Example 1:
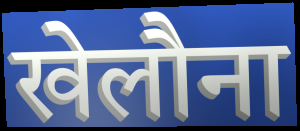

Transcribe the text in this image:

खेलौना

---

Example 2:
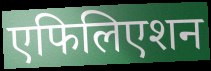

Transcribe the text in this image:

एफिलिएशन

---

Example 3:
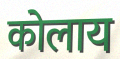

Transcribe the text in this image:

कोलाय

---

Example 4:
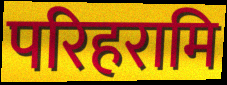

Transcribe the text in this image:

परिहरामि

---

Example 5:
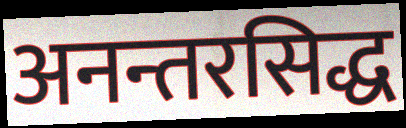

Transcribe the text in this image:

अनन्तरसिद्ध